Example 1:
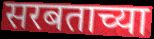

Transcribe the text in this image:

सरबताच्या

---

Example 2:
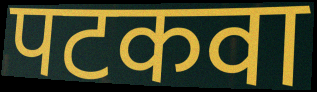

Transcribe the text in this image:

पटकवा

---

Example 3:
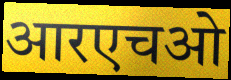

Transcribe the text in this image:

आरएचओ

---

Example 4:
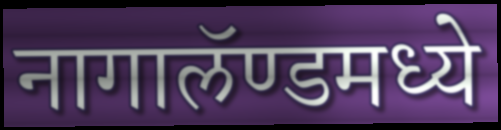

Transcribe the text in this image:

नागालॅण्डमध्ये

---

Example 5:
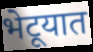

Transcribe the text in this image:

भेटूयात